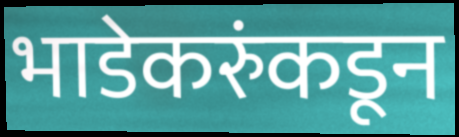
भाडेकरुंकडून